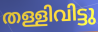
തള്ളിവിട്ടു